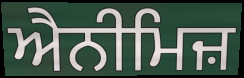
ਐਨੀਮਿਜ਼